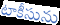
టాకీసును